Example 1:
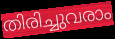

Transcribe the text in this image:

തിരിച്ചുവരാം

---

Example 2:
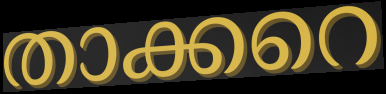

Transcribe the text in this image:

താക്കറെ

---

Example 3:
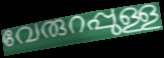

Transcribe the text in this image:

വേരുറപ്പുള്ള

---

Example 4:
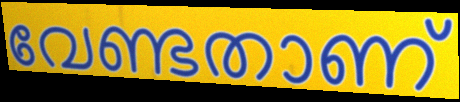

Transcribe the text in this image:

വേണ്ടതാണ്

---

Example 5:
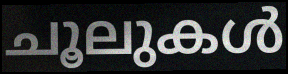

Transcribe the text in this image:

ചൂലുകൾ